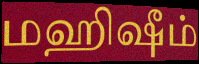
மஹிஷீம்